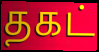
தகட்